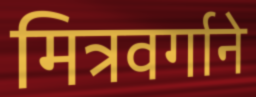
मित्रवर्गाने